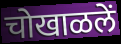
चोखाळलें